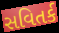
સવિતર્ક